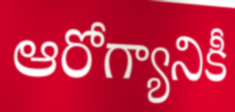
ఆరోగ్యానికీ